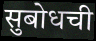
सुबोधची